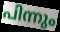
പിന്നും